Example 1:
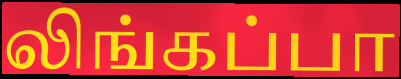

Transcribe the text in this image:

லிங்கப்பா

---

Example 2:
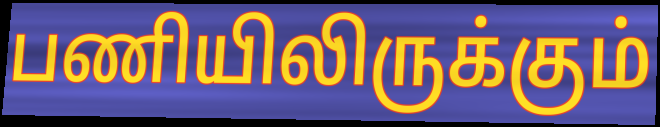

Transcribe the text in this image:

பணியிலிருக்கும்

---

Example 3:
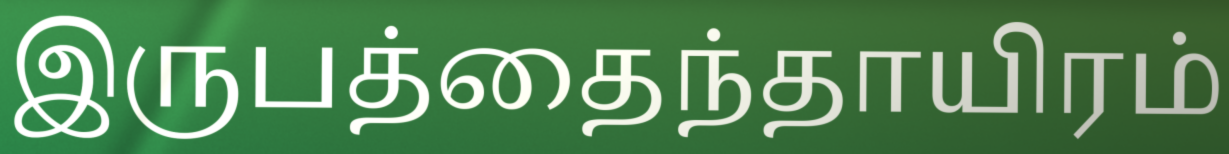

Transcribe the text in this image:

இருபத்தைந்தாயிரம்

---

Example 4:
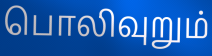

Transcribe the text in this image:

பொலிவுறும்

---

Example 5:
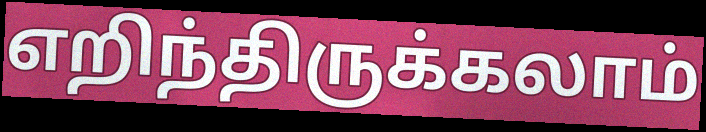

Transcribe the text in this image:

எறிந்திருக்கலாம்